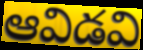
ఆవిడవి